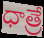
ధాత్రే